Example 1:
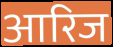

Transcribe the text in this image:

आरिज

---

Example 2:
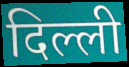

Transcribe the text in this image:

दिल्ली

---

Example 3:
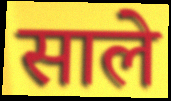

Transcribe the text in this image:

साले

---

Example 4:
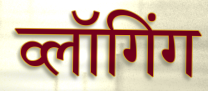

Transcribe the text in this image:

व्लॉगिंग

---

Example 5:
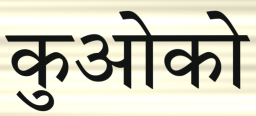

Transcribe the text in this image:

कुओको